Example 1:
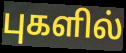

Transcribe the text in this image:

புகளில்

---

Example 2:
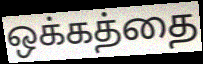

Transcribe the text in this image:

ஒக்கத்தை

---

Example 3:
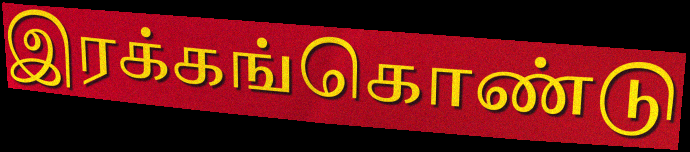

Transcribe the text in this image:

இரக்கங்கொண்டு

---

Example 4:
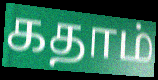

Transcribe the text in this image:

கதாம்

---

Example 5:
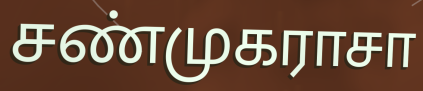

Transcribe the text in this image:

சண்முகராசா